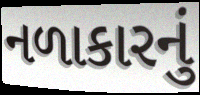
નળાકારનું